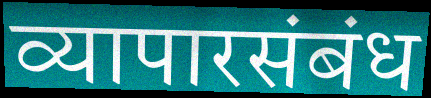
व्यापारसंबंध